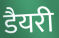
डैयरी